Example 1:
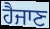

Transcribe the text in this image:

ਹੈਜਾਣ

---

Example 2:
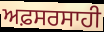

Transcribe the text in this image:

ਅਫ਼ਸਰਸਾਹੀ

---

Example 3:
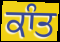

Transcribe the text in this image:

ਕਾੰਤ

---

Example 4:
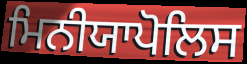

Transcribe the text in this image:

ਮਿਨੀਯਾਪੋਲਿਸ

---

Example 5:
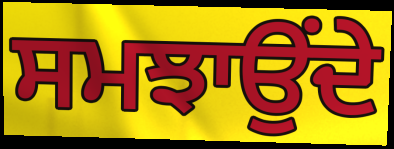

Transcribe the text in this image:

ਸਮਝਾਉਂਦੇ